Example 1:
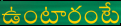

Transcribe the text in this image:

ఉంటారంటే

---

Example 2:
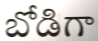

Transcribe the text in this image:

బోడిగా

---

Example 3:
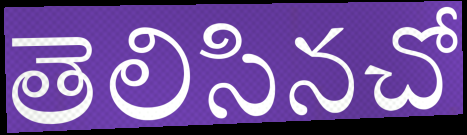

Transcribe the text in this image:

తెలిసినచో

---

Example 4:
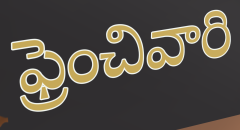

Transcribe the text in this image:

ఫ్రెంచివారి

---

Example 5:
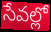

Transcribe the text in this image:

సేవల్లో